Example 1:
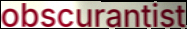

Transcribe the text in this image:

obscurantist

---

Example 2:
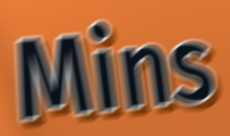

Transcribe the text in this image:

Mins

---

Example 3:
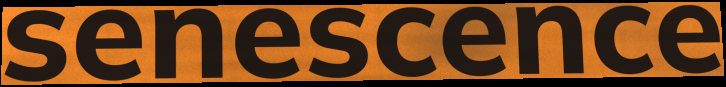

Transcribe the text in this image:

senescence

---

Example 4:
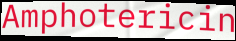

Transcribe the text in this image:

Amphotericin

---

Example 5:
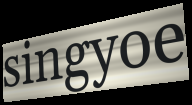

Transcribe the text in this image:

singyoe